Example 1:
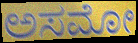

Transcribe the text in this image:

ಅಸಮೋ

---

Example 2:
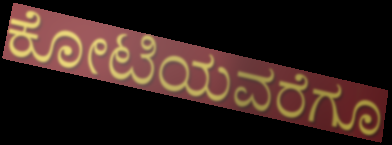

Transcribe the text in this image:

ಕೋಟಿಯವರೆಗೂ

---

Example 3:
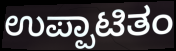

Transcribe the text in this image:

ಉಪ್ಪಾಟಿತಂ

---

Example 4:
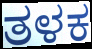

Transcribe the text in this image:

ತಳಕ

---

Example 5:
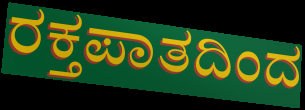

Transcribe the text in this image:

ರಕ್ತಪಾತದಿಂದ